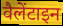
वैलेंटाइन